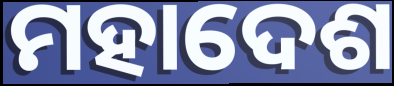
ମହାଦେଶ